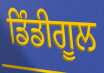
ਡਿੰਡੀਗੂਲ